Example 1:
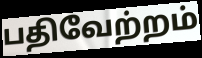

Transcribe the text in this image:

பதிவேற்றம்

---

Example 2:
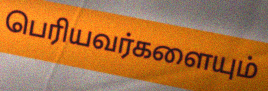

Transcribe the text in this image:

பெரியவர்களையும்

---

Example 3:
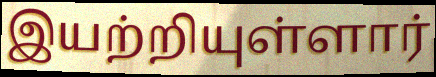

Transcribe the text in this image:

இயற்றியுள்ளார்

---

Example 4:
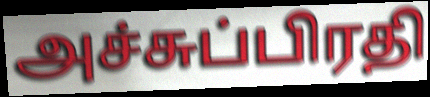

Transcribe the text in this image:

அச்சுப்பிரதி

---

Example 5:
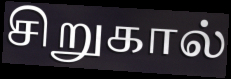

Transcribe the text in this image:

சிறுகால்